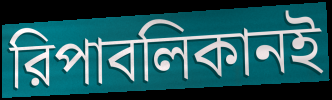
রিপাবলিকানই